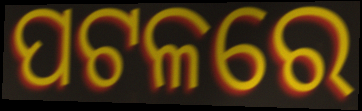
ପଟଳରେ